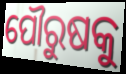
ପୌରୁଷକୁ